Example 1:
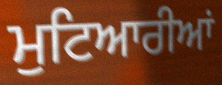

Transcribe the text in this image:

ਮੁਟਿਆਰੀਆਂ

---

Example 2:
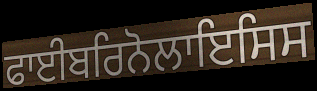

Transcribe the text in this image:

ਫਾਈਬਰਿਨੋਲਾਇਸਿਸ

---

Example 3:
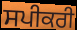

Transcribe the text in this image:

ਸਪੀਕਰੀ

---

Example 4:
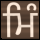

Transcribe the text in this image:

ਮਿੰ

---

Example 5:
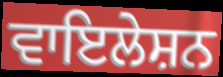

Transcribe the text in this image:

ਵਾਇਲੇਸ਼ਨ